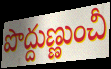
పొద్దుణ్ణుంచీ